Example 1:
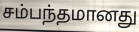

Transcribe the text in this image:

சம்பந்தமானது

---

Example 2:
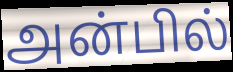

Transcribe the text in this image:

அன்பில்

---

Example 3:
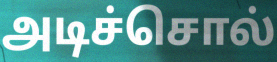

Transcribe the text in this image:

அடிச்சொல்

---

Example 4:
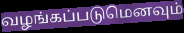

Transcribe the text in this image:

வழங்கப்படுமெனவும்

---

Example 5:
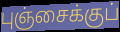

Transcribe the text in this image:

புஞ்சைக்குப்